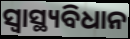
ସ୍ୱାସ୍ଥ୍ୟବିଧାନ